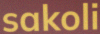
sakoli